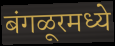
बंगळूरमध्ये